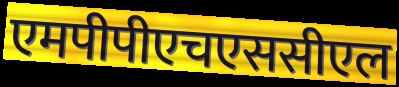
एमपीपीएचएससीएल